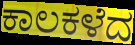
ಕಾಲಕಳೆದ